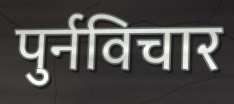
पुर्नविचार